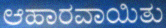
ಆಹಾರವಾಯಿತು